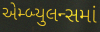
એમ્બ્યુલન્સમાં